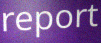
report